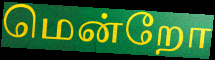
மென்றோ